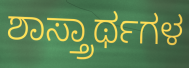
ಶಾಸ್ತ್ರಾರ್ಥಗಳ